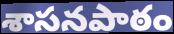
శాసనపాఠం